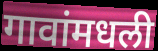
गावांमधली